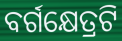
ବର୍ଗକ୍ଷେତ୍ରଟି